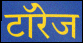
टॉरेज